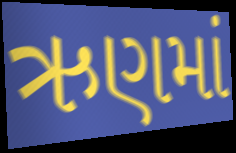
ઋણમાં